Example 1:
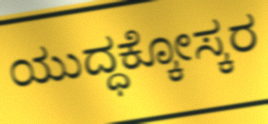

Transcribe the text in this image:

ಯುದ್ಧಕ್ಕೋಸ್ಕರ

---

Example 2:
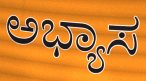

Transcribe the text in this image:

ಅಭ್ಯಾಸ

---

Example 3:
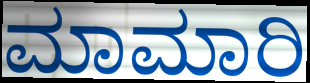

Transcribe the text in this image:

ಮಾಮಾರಿ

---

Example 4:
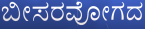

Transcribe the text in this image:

ಬೀಸರವೋಗದ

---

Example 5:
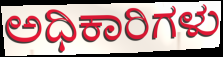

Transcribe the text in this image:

ಅಧಿಕಾರಿಗಳು